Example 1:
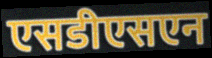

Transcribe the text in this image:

एसडीएसएन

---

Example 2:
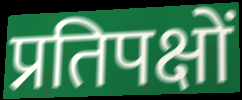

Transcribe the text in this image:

प्रतिपक्षों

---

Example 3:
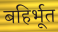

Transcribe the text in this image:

बहिर्भूत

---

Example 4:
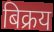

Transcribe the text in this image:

बिक्रय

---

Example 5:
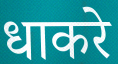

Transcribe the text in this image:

धाकरे